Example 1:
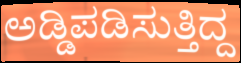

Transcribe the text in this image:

ಅಡ್ಡಿಪಡಿಸುತ್ತಿದ್ದ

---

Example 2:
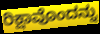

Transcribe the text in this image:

ರಿಕ್ಷಾವೊಂದನ್ನು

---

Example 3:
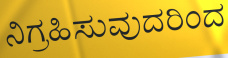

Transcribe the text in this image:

ನಿಗ್ರಹಿಸುವುದರಿಂದ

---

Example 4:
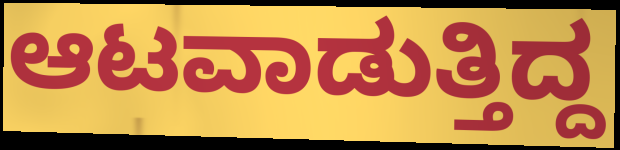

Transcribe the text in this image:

ಆಟವಾಡುತ್ತಿದ್ದ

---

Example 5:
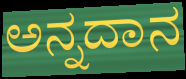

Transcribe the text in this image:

ಅನ್ನದಾನ